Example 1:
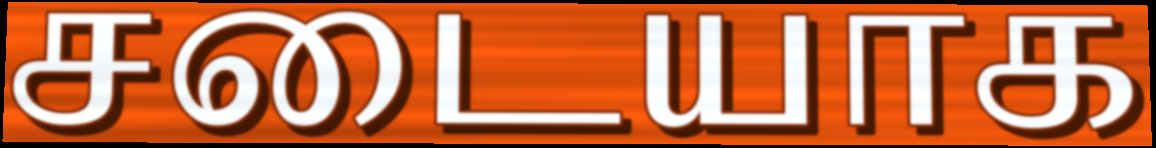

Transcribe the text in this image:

சடையாக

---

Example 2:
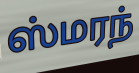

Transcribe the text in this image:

ஸ்மரந்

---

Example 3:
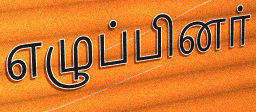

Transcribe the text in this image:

எழுப்பினர்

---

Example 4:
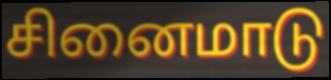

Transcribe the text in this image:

சினைமாடு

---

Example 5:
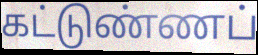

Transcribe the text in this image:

கட்டுண்ணப்